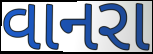
વાનરા